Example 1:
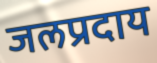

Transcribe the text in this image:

जलप्रदाय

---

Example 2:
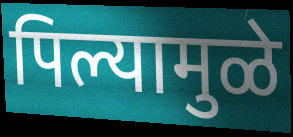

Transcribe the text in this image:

पिल्यामुळे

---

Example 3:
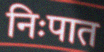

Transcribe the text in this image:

निःपात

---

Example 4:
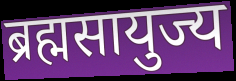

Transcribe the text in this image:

ब्रह्मसायुज्य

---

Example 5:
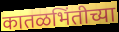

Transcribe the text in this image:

कातळभिंतीच्या